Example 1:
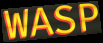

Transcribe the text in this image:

WASP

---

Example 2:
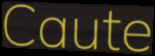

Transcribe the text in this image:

Caute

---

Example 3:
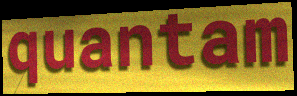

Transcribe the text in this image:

quantam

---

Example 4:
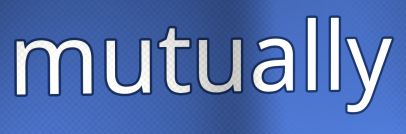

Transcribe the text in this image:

mutually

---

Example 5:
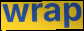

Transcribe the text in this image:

wrap